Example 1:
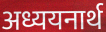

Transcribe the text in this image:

अध्ययनार्थ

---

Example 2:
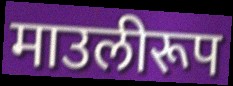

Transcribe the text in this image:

माउलीरूप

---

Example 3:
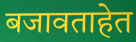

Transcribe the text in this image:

बजावताहेत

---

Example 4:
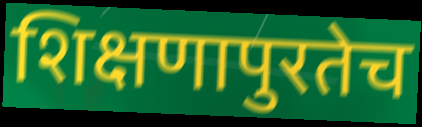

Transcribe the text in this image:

शिक्षणापुरतेच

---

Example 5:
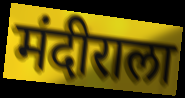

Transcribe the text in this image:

मंदीराला